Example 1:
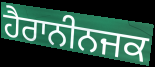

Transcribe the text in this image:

ਹੈਰਾਨੀਨਜਕ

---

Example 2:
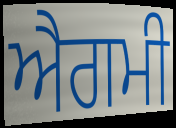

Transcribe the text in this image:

ਐਗਮੀ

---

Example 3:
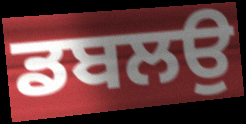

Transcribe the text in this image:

ਡਬਲਉ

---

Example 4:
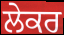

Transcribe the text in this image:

ਲੇਕਰ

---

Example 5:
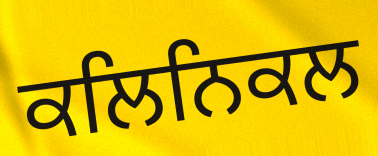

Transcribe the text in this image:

ਕਲਿਨਿਕਲ